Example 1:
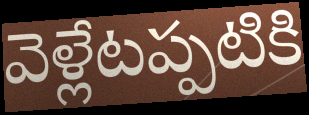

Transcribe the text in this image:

వెళ్లేటప్పటికి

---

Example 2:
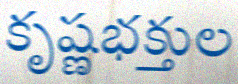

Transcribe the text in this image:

కృష్ణభక్తుల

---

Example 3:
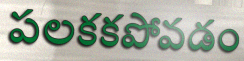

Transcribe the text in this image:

పలకకపోవడం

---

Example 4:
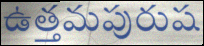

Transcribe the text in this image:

ఉత్తమపురుష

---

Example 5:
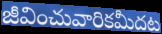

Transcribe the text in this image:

జీవించువారికమీదట